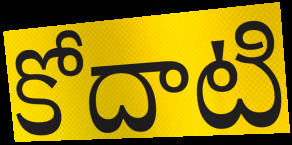
కోదాటి